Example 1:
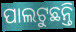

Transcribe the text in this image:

ପାଲଟୁଛନ୍ତି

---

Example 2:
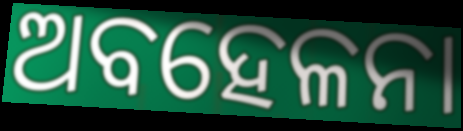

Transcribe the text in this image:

ଅବହେଳନା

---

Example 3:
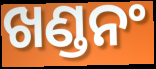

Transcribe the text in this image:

ଖଣ୍ଡନଂ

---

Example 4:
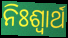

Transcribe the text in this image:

ନିଃଶ୍ୱାର୍ଥ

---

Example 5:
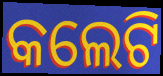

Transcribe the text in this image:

କଲେଟି